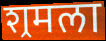
श्रमला